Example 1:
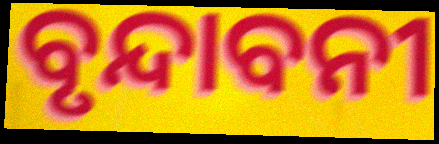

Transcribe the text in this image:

ବୃନ୍ଦାବନୀ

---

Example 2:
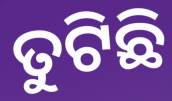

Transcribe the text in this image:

ତୁଟିଛି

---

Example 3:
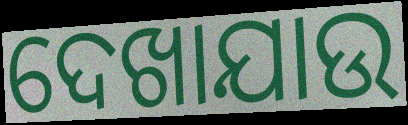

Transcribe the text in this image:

ଦେଖାଯାଉ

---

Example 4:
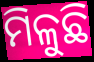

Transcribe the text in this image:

ମିଳୁଛି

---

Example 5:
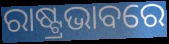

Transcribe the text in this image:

ରାଷ୍ଟ୍ରଭାବରେ